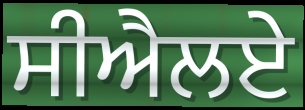
ਸੀਐਲਏ